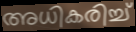
അധികരിച്ച്